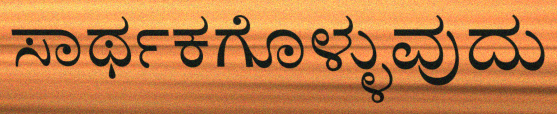
ಸಾರ್ಥಕಗೊಳ್ಳುವುದು